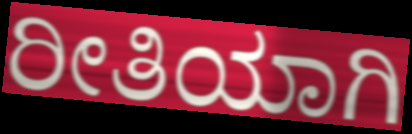
ರೀತಿಯಾಗಿ